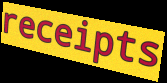
receipts